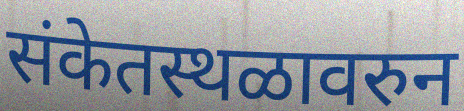
संकेतस्थळावरुन